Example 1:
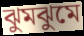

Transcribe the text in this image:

ঝুমঝুমে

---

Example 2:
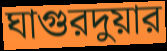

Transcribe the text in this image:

ঘাগুরদুয়ার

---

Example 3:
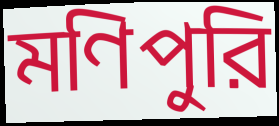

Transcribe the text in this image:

মণিপুরি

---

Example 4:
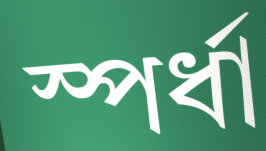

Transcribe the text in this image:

স্পর্ধা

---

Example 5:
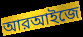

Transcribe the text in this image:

আরআইজে